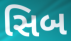
સિબ